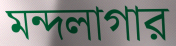
মন্দলাগার